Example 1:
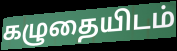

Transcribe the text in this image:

கழுதையிடம்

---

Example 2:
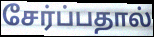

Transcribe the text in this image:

சேர்ப்பதால்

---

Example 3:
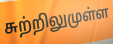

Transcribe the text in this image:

சுற்றிலுமுள்ள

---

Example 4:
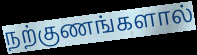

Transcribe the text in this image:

நற்குணங்களால்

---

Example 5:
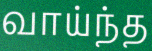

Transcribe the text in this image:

வாய்ந்த